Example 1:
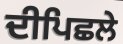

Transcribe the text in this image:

ਦੀਪਿਛਲੇ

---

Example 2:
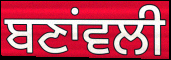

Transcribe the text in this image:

ਬਣਾਂਵਲੀ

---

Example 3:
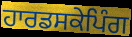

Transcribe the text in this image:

ਹਾਰਡਸਕੇਪਿੰਗ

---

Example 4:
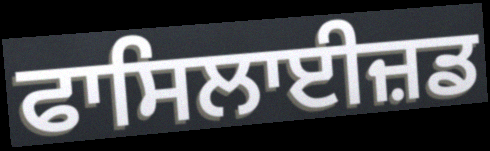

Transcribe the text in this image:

ਫਾਸਿਲਾਈਜ਼ਡ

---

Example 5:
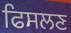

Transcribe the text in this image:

ਫਿਸਲਣ